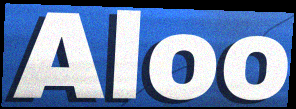
Aloo